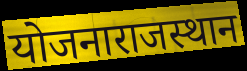
योजनाराजस्थान